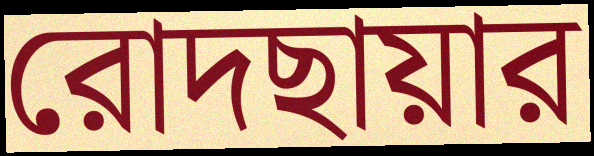
রোদছায়ার